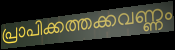
പ്രാപിക്കത്തക്കവണ്ണം